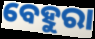
ବେହୁରା